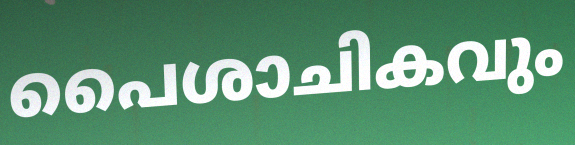
പൈശാചികവും